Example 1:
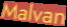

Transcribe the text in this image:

Malvan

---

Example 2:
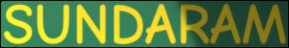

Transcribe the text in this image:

SUNDARAM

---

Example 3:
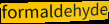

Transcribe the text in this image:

formaldehyde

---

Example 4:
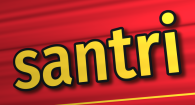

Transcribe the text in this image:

santri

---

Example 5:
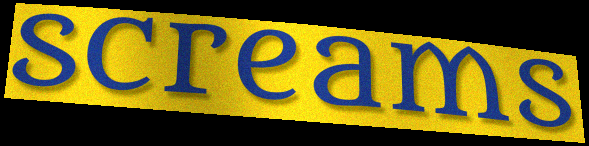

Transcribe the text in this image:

screams